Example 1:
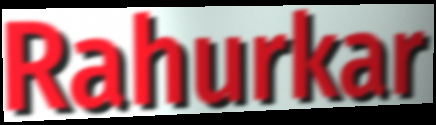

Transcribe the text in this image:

Rahurkar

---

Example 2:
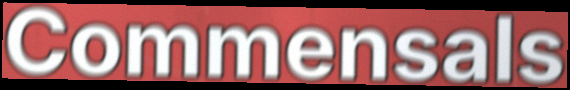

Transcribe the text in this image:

Commensals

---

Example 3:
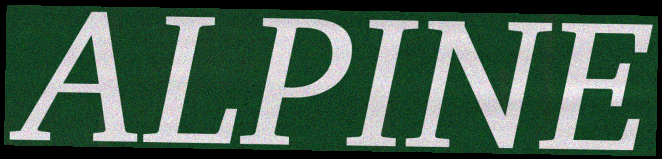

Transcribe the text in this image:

ALPINE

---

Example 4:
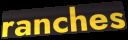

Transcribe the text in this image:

ranches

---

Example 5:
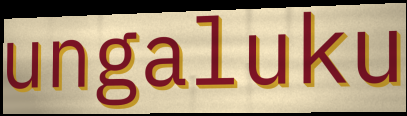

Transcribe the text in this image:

ungaluku